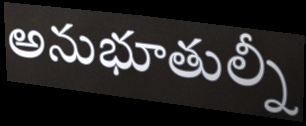
అనుభూతుల్నీ